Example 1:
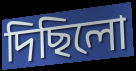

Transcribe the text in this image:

দিছিলো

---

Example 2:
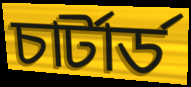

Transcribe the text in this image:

চার্টার্ড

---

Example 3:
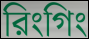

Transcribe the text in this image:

রিংগিং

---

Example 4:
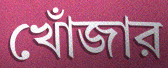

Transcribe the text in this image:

খোঁজার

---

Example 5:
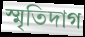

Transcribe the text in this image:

স্মৃতিদাগ